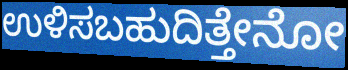
ಉಳಿಸಬಹುದಿತ್ತೇನೋ